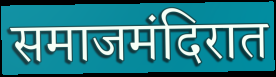
समाजमंदिरात